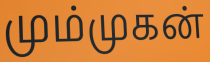
மும்முகன்